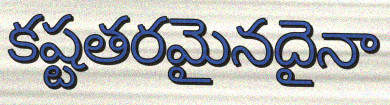
కష్టతరమైనదైనా